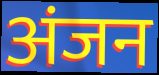
अंजन